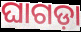
ଘାଗଡ଼ା